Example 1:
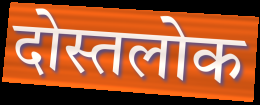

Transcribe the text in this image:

दोस्तलोक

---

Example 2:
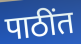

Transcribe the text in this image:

पाठींत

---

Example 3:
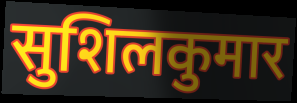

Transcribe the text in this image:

सुशिलकुमार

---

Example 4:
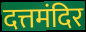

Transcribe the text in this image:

दत्तमंदिर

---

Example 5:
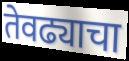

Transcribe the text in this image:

तेवढ्याचा